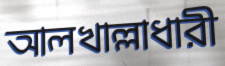
আলখাল্লাধারী